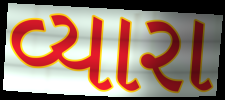
વ્યારા